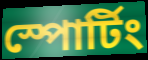
স্পোর্টিং